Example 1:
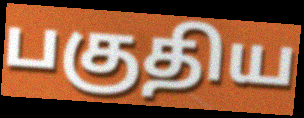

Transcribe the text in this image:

பகுதிய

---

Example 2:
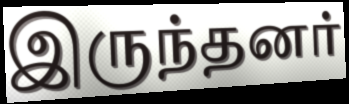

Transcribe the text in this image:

இருந்தனர்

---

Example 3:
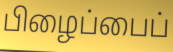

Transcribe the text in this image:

பிழைப்பைப்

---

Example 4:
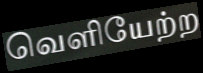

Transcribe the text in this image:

வெளியேற்ற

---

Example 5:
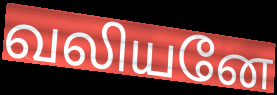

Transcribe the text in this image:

வலியனே